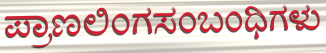
ಪ್ರಾಣಲಿಂಗಸಂಬಂಧಿಗಳು